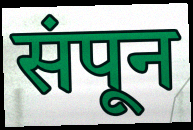
संपून